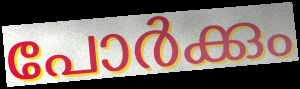
പോർക്കും